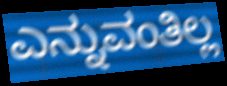
ಎನ್ನುವಂತಿಲ್ಲ